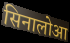
सिनालोआ